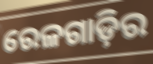
ରେଳଗାଡ଼ିର